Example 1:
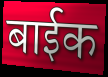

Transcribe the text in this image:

बाईक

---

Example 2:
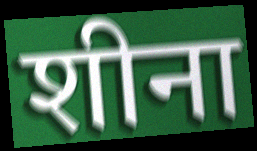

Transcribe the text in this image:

शीना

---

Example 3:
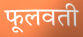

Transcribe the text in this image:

फूलवती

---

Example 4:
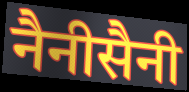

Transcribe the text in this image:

नैनीसैनी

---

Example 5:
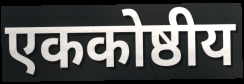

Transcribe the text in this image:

एककोष्ठीय